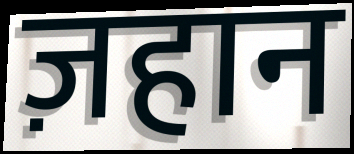
ज़हान